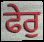
ਫੇਰੁ